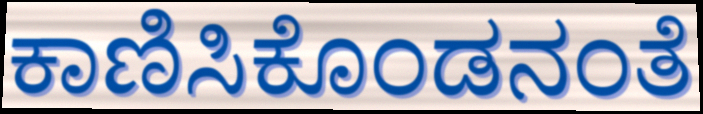
ಕಾಣಿಸಿಕೊಂಡನಂತೆ